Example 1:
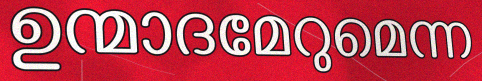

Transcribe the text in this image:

ഉന്മാദമേറുമെന്ന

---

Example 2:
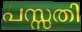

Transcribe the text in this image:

പസ്സതി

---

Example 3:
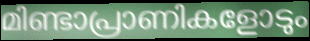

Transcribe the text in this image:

മിണ്ടാപ്രാണികളോടും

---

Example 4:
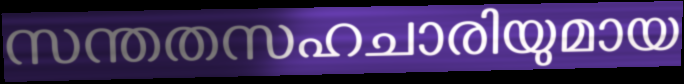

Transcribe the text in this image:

സന്തതസഹചാരിയുമായ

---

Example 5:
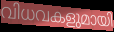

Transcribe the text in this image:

വിധവകളുമായി